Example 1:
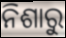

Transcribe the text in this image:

ନିଶାରୁ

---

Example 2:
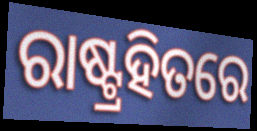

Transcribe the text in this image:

ରାଷ୍ଟ୍ରହିତରେ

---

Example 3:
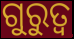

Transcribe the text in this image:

ଗୁରୁତ୍ବ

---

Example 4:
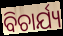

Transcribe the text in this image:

ବିଚାର୍ଯ୍ୟ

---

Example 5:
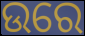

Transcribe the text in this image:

ଉରେ